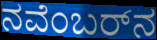
ನವೆಂಬರ್‌ನ